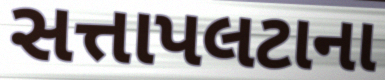
સત્તાપલટાના